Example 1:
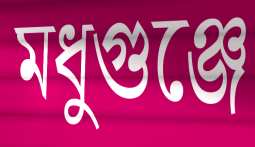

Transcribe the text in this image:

মধুগুঞ্জে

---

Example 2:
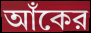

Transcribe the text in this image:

আঁকের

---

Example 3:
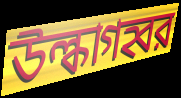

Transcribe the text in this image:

উল্কাগহ্বর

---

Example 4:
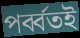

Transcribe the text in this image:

পর্ব্বতই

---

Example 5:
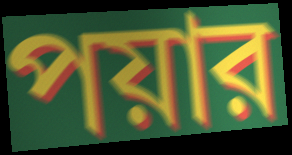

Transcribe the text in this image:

পয়ার